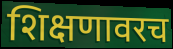
शिक्षणावरच